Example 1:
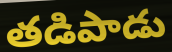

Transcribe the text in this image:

తడిపాడు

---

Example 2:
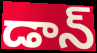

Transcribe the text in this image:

డాన్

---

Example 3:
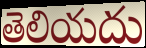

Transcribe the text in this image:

తెలియదు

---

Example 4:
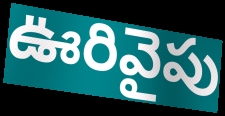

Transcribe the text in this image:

ఊరివైపు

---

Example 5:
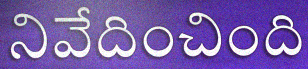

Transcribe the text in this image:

నివేదించింది